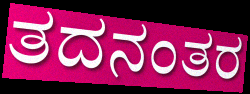
ತದನಂತರ